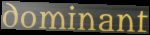
dominant